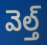
వెల్త్